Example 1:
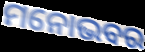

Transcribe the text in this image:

ମନୋଭବର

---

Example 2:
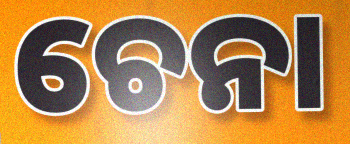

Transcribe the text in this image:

ଚେନା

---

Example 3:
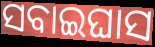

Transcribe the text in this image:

ସବାଇଘାସ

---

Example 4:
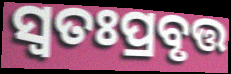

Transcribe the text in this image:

ସ୍ୱତଃପ୍ରବୃତ୍ତ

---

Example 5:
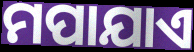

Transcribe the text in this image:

ମପାଯାଏ